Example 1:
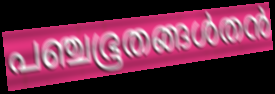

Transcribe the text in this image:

പഞ്ചഭൂതങ്ങൾതൻ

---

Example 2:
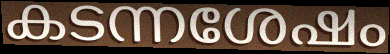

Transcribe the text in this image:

കടന്നശേഷം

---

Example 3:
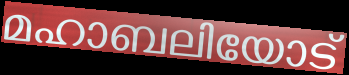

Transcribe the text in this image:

മഹാബലിയോട്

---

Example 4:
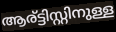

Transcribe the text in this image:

ആര്ട്ടിസ്റ്റിനുള്ള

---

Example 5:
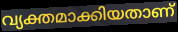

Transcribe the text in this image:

വ്യക്തമാക്കിയതാണ്